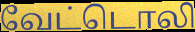
வேட்டொலி